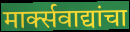
मार्क्‍सवाद्यांचा